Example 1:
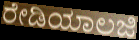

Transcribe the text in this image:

ರೇಡಿಯಾಲಜಿ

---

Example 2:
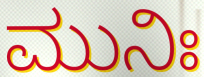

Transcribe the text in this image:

ಮುನಿಃ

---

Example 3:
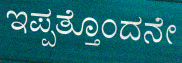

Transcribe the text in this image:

ಇಪ್ಪತ್ತೊಂದನೇ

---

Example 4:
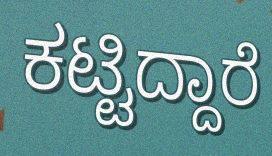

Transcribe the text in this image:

ಕಟ್ಟಿದ್ದಾರೆ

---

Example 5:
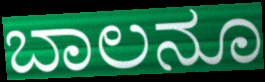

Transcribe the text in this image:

ಬಾಲನೂ